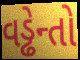
વડ્ઢેન્તો